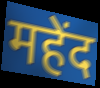
महेंद